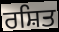
ਰਸ਼ਿਤ